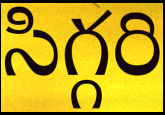
సిగ్గరి